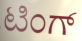
ಟಿಂಗ್